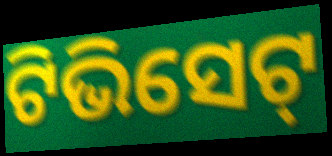
ଟିଭିସେଟ୍